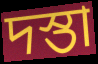
দস্তা